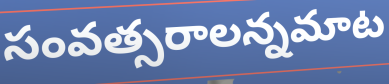
సంవత్సరాలన్నమాట